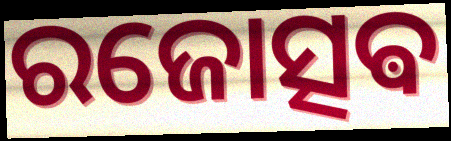
ରଜୋତ୍ସଵ